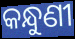
କନ୍ଧୁଣୀ